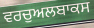
ਵਰਚੁਅਲਬਾਕਸ